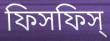
ফিসফিস্